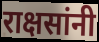
राक्षसांनी